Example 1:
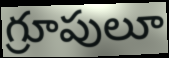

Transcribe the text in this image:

గ్రూపులూ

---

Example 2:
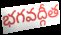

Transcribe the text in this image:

భగవద్గీత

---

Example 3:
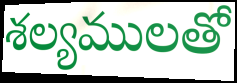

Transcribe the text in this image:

శల్యములతో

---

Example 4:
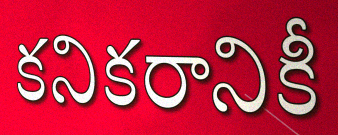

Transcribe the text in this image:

కనికరానికీ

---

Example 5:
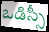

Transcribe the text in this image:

ఒడిస్సీ